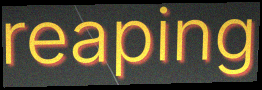
reaping